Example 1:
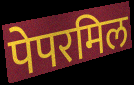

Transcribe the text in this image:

पेपरमिल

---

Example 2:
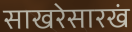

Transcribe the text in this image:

साखरेसारखं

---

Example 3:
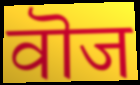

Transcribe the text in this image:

वॊज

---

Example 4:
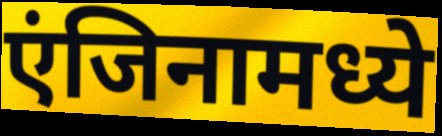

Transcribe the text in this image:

एंजिनामध्ये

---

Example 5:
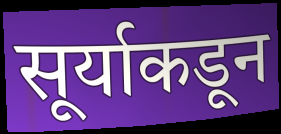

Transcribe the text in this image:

सूर्याकडून